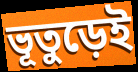
ভূতুড়েই